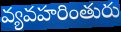
వ్యవహరింతురు